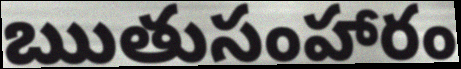
ఋతుసంహారం